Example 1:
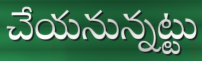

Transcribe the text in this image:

చేయనున్నట్టు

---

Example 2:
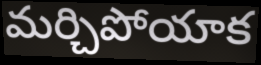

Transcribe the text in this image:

మర్చిపోయాక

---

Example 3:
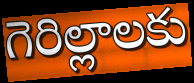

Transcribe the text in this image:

గెరిల్లాలకు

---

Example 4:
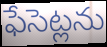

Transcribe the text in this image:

ఫేసెట్లను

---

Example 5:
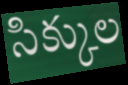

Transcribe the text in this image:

సిక్కుల